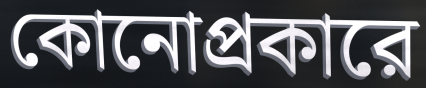
কোনোপ্রকারে